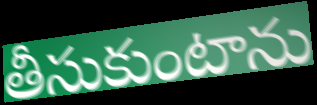
తీసుకుంటాను